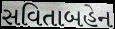
સવિતાબહેન